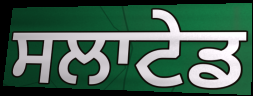
ਸਲਾਟੇਡ